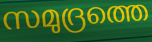
സമുദ്രത്തെ